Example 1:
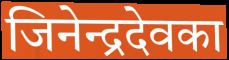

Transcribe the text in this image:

जिनेन्द्रदेवका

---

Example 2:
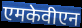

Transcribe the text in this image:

एमकेवीएन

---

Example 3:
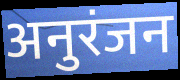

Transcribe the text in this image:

अनुरंजन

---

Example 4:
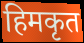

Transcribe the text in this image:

हिमकृत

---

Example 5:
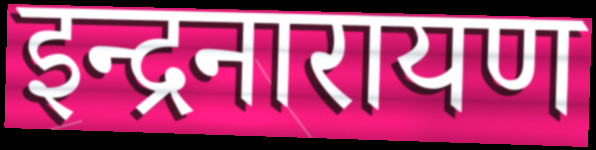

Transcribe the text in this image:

इन्द्रनारायण